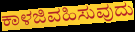
ಕಾಳಜಿವಹಿಸುವುದು